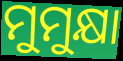
ମୁମୁକ୍ଷା